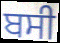
ਬਸੀ